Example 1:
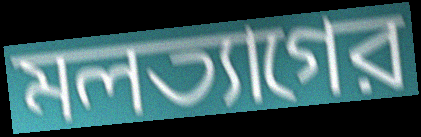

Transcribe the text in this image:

মলত্যাগের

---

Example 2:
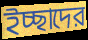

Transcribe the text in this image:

ইচ্ছাদের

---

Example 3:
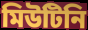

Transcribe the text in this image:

মিউটিনি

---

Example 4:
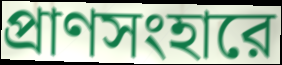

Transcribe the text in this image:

প্রাণসংহারে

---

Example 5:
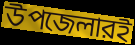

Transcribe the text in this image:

উপজেলারই